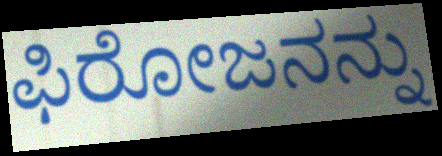
ಫಿರೋಜನನ್ನು